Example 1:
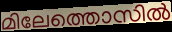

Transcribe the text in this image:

മിലേത്തൊസിൽ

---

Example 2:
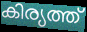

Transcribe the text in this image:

കിര്യത്ത്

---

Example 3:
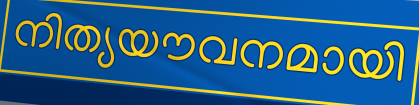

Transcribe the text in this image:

നിത്യയൗവനമായി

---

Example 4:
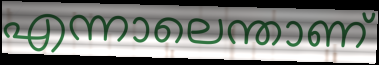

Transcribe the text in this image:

എന്നാലെന്താണ്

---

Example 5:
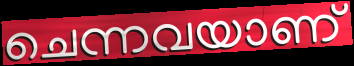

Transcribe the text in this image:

ചെന്നവയാണ്